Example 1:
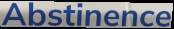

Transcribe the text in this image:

Abstinence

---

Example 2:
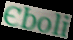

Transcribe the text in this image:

Eboli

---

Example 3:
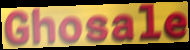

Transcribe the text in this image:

Ghosale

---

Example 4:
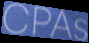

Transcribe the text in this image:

CPAs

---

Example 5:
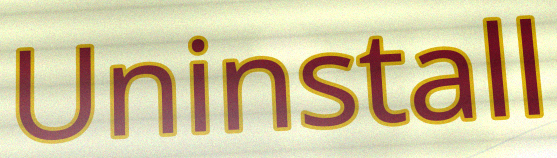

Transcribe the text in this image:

Uninstall